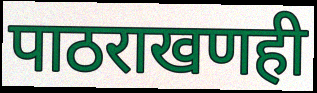
पाठराखणही